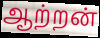
ஆற்றன்